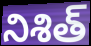
నిశిత్